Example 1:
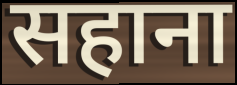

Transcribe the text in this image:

सहाना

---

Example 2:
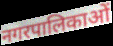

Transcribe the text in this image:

नगरपालिकाओं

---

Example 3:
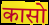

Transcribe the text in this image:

कासो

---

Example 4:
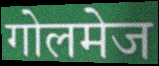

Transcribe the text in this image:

गोलमेज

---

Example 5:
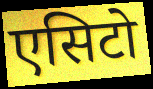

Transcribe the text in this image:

एसिटो